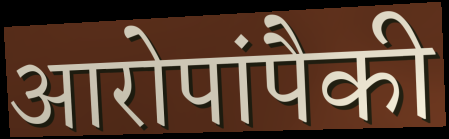
आरोपांपैकी